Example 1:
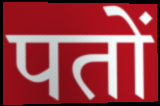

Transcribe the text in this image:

पतों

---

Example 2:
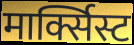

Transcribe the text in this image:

मार्क्सिस्ट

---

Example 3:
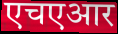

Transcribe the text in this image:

एचएआर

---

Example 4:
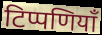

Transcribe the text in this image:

टिप्पणियाँ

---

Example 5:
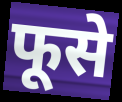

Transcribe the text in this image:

फूसे